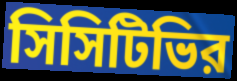
সিসিটিভির